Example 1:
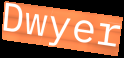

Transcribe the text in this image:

Dwyer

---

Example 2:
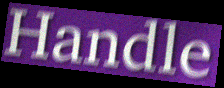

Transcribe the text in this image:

Handle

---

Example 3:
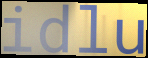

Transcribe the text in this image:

idlu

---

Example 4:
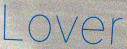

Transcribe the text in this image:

Lover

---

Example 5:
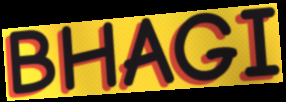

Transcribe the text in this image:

BHAGI